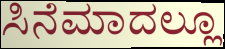
ಸಿನೆಮಾದಲ್ಲೂ